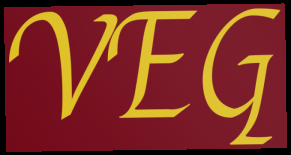
VEG